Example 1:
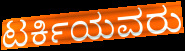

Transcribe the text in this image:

ಟರ್ಕಿಯವರು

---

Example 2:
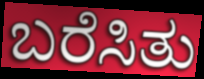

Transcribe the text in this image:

ಬರೆಸಿತು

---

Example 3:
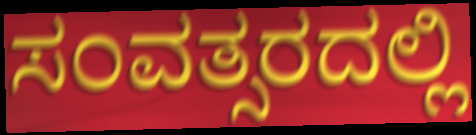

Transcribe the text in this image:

ಸಂವತ್ಸರದಲ್ಲಿ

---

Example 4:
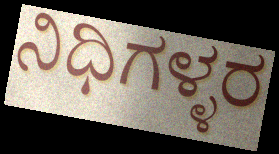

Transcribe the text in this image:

ನಿಧಿಗಳ್ಳರ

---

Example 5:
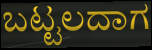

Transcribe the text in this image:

ಬಟ್ಟಲದಾಗ